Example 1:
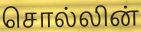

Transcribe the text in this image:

சொல்லின்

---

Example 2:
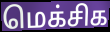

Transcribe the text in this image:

மெக்சிக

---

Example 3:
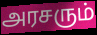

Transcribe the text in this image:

அரசரும்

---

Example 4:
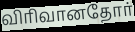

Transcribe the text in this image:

விரிவானதோர்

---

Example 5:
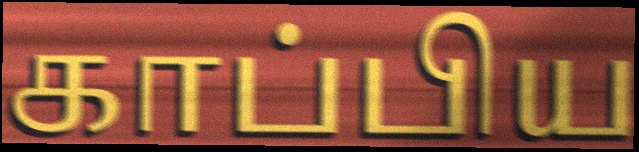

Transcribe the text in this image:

காப்பிய